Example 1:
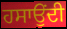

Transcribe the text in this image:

ਹਸਾਉਂਦੀ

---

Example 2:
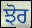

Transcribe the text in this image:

ਝੋਰ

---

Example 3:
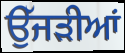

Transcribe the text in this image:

ਉੱਜੜੀਆਂ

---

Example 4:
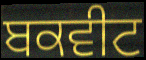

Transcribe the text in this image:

ਬਕਵੀਟ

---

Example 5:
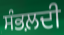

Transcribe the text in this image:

ਸੰਭਲ਼ਦੀ